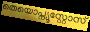
തെയൊപ്ന്യൂസ്റ്റോസ്